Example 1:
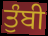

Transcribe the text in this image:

ਤੁੰਬੀ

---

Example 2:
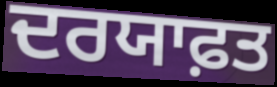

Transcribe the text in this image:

ਦਰਯਾਫ਼ਤ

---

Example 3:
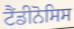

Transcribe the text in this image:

ਟੈਂਡੀਨੋਸਿਸ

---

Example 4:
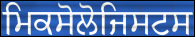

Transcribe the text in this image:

ਮਿਕਸੋਲੋਜਿਸਟਸ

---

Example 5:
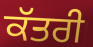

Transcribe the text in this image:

ਕੱਤਰੀ